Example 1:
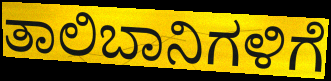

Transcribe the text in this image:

ತಾಲಿಬಾನಿಗಳಿಗೆ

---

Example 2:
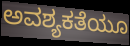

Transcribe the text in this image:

ಅವಶ್ಯಕತೆಯೂ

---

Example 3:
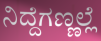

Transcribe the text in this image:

ನಿದ್ದೆಗಣ್ಣಲ್ಲೆ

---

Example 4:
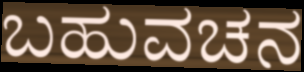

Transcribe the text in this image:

ಬಹುವಚನ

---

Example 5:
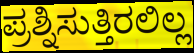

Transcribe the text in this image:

ಪ್ರಶ್ನಿಸುತ್ತಿರಲಿಲ್ಲ